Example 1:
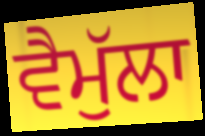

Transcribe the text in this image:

ਵੈਮੁੱਲਾ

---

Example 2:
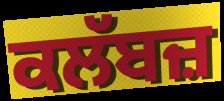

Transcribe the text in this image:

ਕਲੱਬਜ਼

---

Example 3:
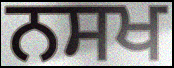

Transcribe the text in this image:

ਨਸਖ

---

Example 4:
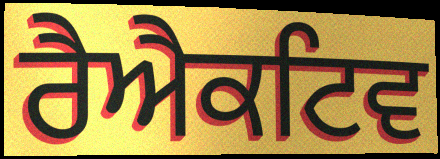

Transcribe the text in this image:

ਰੈਐਕਟਿਵ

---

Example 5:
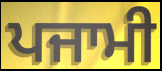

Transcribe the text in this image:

ਪਜਾਮੀ